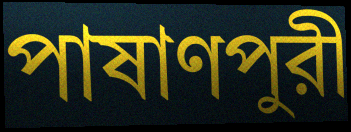
পাষাণপুরী